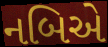
નબિએ